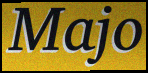
Majo